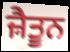
ਜ਼ੈਤੂਨ